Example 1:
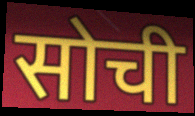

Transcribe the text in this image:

सोची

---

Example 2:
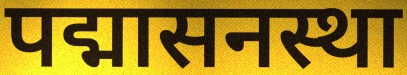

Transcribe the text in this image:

पद्मासनस्था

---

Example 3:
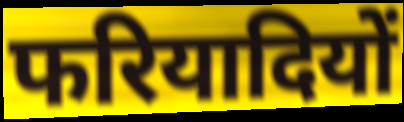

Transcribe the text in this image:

फरियादियों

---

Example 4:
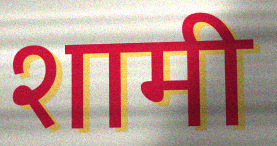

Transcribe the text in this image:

शामी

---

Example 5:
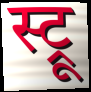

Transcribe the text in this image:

स्ट्रू